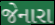
જેનારા